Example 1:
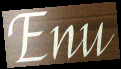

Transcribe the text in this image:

Enu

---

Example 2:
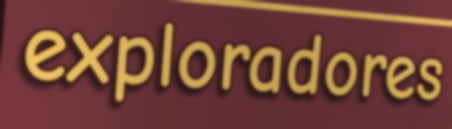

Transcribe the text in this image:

exploradores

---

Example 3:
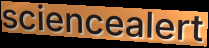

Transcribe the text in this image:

sciencealert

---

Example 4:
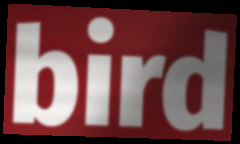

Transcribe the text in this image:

bird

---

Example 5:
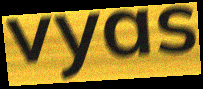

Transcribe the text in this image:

vyas